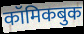
कॉमिकबुक